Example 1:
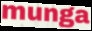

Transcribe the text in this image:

munga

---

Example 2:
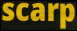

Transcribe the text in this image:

scarp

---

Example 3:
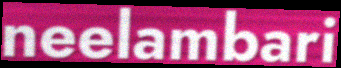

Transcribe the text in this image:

neelambari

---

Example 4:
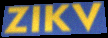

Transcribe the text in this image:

ZIKV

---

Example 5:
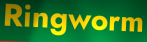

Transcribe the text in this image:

Ringworm